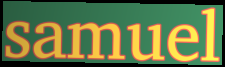
samuel